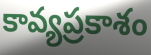
కావ్యప్రకాశం